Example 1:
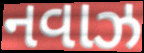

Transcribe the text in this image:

નવાઝ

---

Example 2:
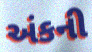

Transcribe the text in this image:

અંકની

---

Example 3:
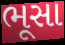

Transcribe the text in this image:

ભૂસા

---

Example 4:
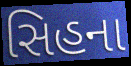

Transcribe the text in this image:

સિહના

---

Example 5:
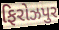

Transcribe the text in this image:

ફિરોઝપુર